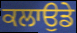
ਕਲਾਉਡੇ